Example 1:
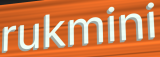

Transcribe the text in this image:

rukmini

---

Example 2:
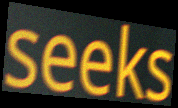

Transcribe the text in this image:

seeks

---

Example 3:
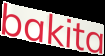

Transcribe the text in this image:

bakita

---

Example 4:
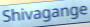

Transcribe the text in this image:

Shivagange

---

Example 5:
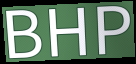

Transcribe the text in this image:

BHP